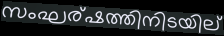
സംഘര്ഷത്തിനിടയില്